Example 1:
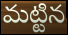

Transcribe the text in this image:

మట్టిన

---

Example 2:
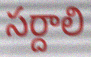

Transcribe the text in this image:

సర్దాలి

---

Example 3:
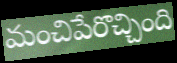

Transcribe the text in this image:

మంచిపేరొచ్చింది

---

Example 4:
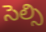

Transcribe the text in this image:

సెల్సి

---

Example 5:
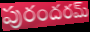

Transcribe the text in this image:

పురందరమ్